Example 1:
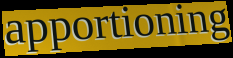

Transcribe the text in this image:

apportioning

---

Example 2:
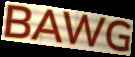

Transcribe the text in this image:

BAWG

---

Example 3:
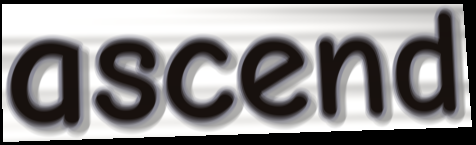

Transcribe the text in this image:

ascend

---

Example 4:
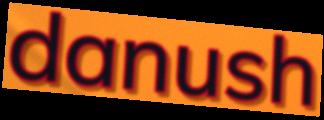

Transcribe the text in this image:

danush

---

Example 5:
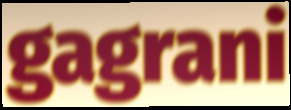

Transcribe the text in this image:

gagrani